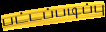
பட்டப்படிப்பு